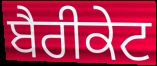
ਬੈਰੀਕੇਟ